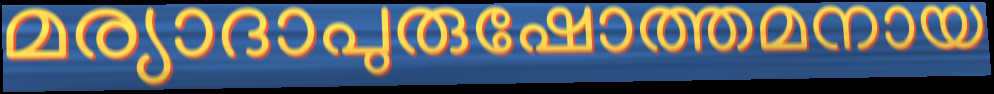
മര്യാദാപുരുഷോത്തമനായ